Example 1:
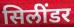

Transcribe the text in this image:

सिलींडर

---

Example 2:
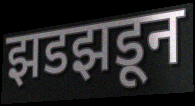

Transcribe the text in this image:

झडझडून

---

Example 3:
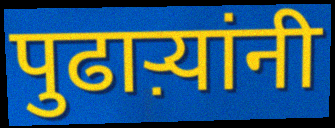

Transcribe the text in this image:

पुढाऱ्‍यांनी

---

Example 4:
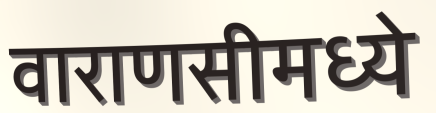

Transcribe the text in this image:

वाराणसीमध्ये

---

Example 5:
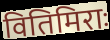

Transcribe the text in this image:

वितिमिराः